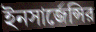
ইনসার্জেন্সির